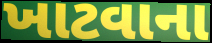
ખાટવાના